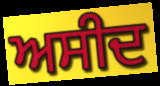
ਅਸੀਦ